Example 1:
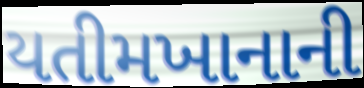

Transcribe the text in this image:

યતીમખાનાની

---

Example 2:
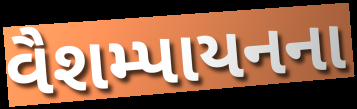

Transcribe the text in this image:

વૈશમ્પાયનના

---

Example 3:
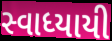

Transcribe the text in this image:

સ્વાધ્યાયી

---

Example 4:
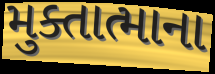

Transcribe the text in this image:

મુક્તાત્માના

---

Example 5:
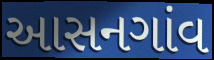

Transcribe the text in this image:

આસનગાંવ